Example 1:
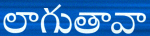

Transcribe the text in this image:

లాగుతావా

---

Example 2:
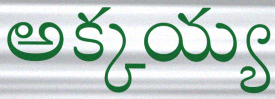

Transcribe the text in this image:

అక్కయ్య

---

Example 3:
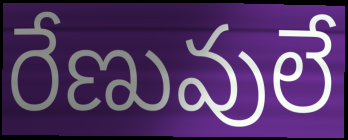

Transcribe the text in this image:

రేణువులే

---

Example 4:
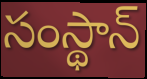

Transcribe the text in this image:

సంస్థాన్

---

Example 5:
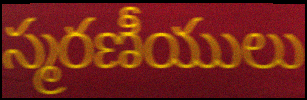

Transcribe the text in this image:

స్మరణీయులు